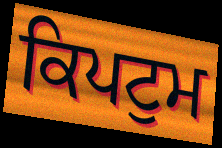
ਕਿਪਟੁਮ